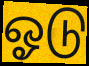
ஓடு